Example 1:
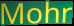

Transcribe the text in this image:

Mohr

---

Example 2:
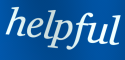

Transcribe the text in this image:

helpful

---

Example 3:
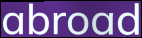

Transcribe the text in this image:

abroad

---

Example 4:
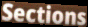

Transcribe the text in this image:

Sections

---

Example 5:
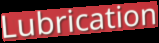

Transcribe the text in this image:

Lubrication